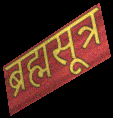
ब्रह्मसूत्र